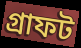
গ্রাফট